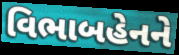
વિભાબહેનને